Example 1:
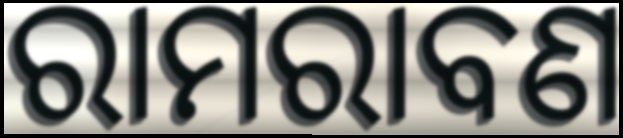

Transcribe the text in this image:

ରାମରାବଣ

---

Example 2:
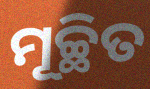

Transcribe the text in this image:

ମୂଚ୍ଛିତ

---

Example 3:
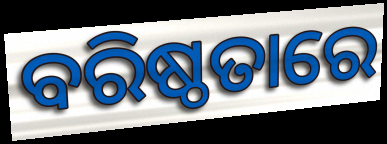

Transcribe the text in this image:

ବରିଷ୍ଠତାରେ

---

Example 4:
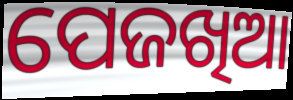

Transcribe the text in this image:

ପେଜଖିଆ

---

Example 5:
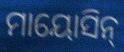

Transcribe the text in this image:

ମାୟୋସିନ୍